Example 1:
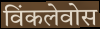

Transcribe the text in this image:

विंकलेवोस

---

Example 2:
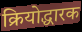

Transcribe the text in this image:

क्रियोद्धारक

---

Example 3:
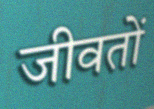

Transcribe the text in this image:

जीवतों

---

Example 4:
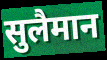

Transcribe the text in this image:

सुलैमान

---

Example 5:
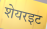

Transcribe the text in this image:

शेयरइट